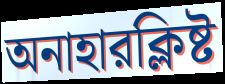
অনাহারক্লিষ্ট